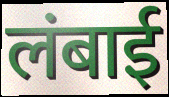
लंबाई